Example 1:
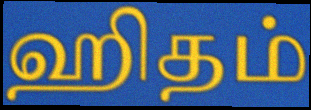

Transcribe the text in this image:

ஹிதம்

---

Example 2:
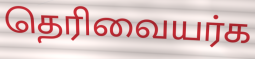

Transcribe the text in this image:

தெரிவையர்க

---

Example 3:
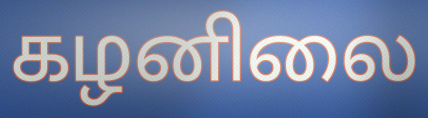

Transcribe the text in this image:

கழனிலை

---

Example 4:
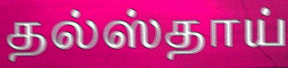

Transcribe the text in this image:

தல்ஸ்தாய்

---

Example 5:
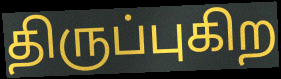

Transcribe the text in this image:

திருப்புகிற